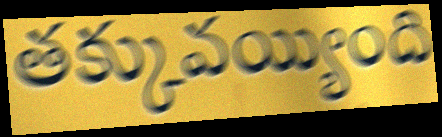
తక్కువయ్యింది